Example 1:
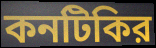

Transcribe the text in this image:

কনটিকির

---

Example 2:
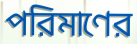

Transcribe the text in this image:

পরিমাণের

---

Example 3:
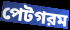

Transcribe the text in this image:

পেটগরম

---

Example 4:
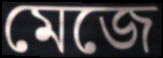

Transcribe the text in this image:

মেজে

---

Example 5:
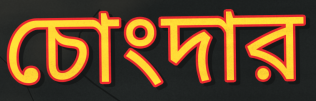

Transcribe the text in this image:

চোংদার